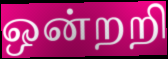
ஒன்றறி